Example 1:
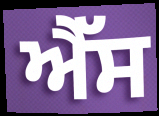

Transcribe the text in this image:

ਐੱਸ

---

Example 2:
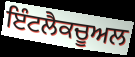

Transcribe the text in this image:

ਇੰਟਲੈਕਚੂਅਲ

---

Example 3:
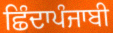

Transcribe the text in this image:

ਛਿੰਦਾਪੰਜਾਬੀ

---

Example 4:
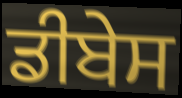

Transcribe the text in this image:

ਡੀਬੇਸ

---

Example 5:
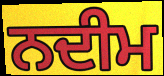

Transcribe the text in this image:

ਨਦੀਮ